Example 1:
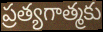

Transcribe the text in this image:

ప్రత్యగాత్మకు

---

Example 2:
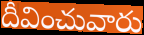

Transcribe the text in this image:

దీవించువారు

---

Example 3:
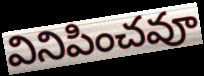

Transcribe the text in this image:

వినిపించవూ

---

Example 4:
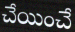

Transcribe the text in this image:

చేయించే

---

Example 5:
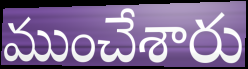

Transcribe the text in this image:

ముంచేశారు